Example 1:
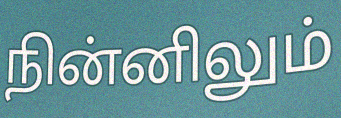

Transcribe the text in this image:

நின்னிலும்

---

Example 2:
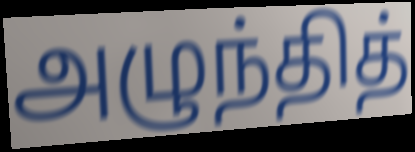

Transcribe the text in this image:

அழுந்தித்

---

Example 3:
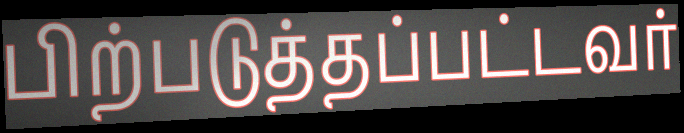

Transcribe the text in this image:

பிற்படுத்தப்பட்டவர்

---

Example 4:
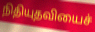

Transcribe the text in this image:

நிதியுதவியைச்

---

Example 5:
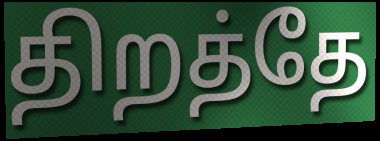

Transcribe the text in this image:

திறத்தே